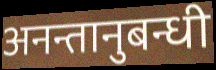
अनन्तानुबन्धी